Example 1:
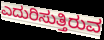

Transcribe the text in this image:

ಎದುರಿಸುತ್ತಿರುವ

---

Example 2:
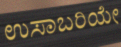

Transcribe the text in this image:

ಉಸಾಬರಿಯೇ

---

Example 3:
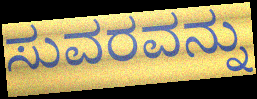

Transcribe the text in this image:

ಸುವರವನ್ನು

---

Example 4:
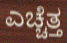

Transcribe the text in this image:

ಎಚ್ಚೆತ್ತ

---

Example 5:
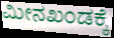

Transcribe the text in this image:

ಮೀನಖಂಡಕ್ಕೆ